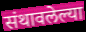
संथावलेल्या